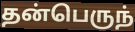
தன்பெருந்